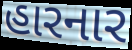
હારનાર